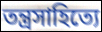
তন্ত্রসাহিত্যে